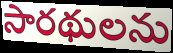
సారథులను